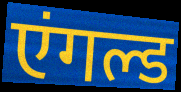
एंगल्ड